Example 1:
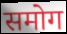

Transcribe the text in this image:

समोग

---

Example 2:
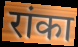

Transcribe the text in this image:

रांका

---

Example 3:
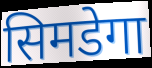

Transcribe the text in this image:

सिमडेगा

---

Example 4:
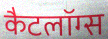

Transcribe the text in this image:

कैटलॉग्स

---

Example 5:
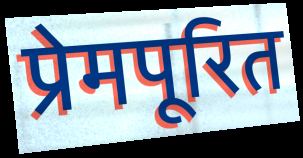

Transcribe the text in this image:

प्रेमपूरित